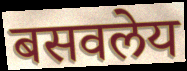
बसवलेय